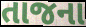
તાજના